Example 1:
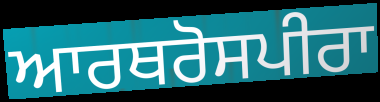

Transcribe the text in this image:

ਆਰਥਰੋਸਪੀਰਾ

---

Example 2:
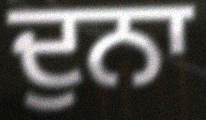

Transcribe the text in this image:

ਦੁਨਾ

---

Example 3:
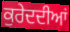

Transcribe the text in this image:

ਕੁਰੇਦਦੀਆਂ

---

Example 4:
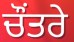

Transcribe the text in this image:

ਚੌਂਤਰੇ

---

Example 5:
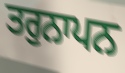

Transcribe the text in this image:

ਤਰੁਨਾਪਨ